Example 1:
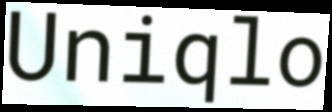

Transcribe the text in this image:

Uniqlo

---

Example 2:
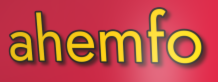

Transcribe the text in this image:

ahemfo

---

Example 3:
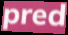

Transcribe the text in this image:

pred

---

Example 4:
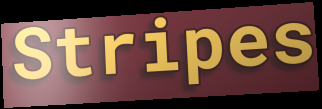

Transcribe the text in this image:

Stripes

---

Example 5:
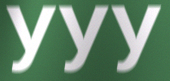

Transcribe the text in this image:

yyy